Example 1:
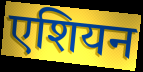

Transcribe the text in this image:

एशियन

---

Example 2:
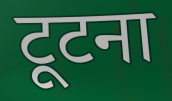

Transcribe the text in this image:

टूटना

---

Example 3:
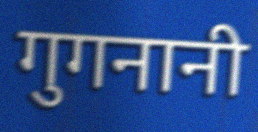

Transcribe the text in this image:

गुगनानी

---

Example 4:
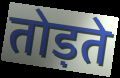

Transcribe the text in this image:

तोड़ते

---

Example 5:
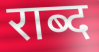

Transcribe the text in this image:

राब्द